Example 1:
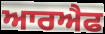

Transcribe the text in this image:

ਆਰਐਫ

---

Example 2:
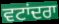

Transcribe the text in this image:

ਵਟਾਂਦਰਾ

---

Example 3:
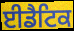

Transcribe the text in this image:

ਈਡੈਟਿਕ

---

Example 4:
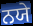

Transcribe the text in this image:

ਨਯੇ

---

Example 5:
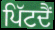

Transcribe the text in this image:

ਪਿੱਟਦੈਂ